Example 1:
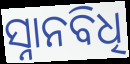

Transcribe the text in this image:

ସ୍ନାନବିଧି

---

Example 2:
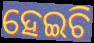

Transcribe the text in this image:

ହେଇଚି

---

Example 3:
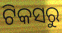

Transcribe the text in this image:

ଟିକସରୁ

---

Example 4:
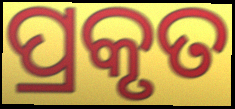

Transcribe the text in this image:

ପ୍ରକୃତ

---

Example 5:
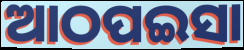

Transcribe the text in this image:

ଆଠପଇସା